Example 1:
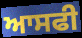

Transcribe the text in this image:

ਆਸਫੀ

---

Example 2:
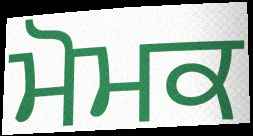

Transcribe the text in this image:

ਮੋਮਕ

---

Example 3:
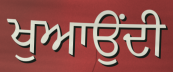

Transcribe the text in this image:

ਖੁਆਉਂਦੀ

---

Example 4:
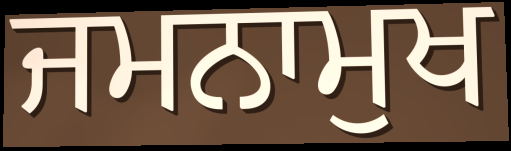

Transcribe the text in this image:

ਜਮਨਾਮੁਖ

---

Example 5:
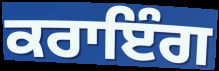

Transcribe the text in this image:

ਕਰਾਇੰਗ